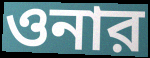
ওনার